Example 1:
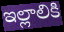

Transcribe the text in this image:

ఇల్లాలికి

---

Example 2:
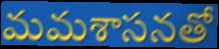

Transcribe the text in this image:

మమశాసనతో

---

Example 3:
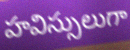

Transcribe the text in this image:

హవిస్సులుగా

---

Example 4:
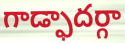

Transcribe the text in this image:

గాడ్ఫాదర్గా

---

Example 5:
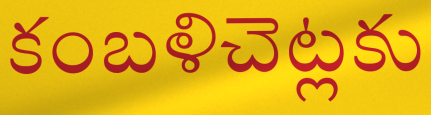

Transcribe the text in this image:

కంబళిచెట్లకు